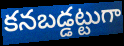
కనబడ్డట్టుగా